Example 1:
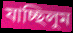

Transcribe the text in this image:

যাচ্ছিলুম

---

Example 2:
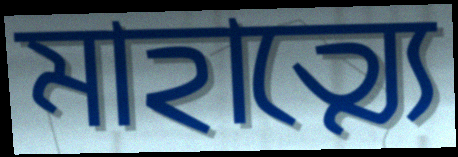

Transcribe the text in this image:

মাহাত্ম্যে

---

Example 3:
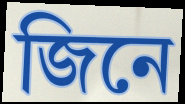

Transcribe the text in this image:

জিনে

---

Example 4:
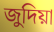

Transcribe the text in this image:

জুদিয়া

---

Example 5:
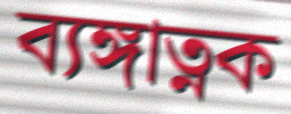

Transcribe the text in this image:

ব্যঙ্গাত্নক